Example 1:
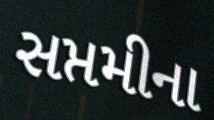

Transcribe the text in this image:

સપ્તમીના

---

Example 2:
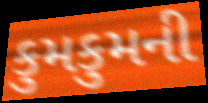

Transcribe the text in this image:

કુમકુમની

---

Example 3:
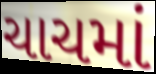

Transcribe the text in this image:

ચાચમાં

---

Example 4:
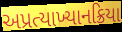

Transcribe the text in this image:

અપ્રત્યાખ્યાનક્રિયા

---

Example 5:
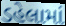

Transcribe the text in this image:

ડહેલામાં